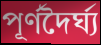
পূর্ণদৈর্ঘ্য